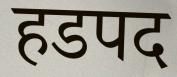
हडपद